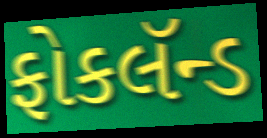
ફોકલૅન્ડ